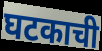
घटकाची